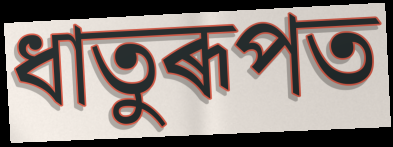
ধাতুৰূপত